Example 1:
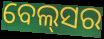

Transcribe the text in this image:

ବେଲ୍‌ସର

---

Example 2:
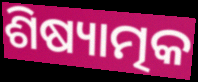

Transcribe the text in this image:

ଶିଷ୍ୟାତ୍ମକ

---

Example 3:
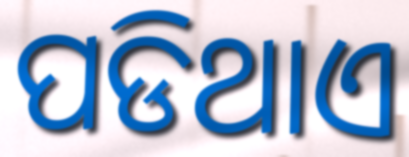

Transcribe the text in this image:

ପଡିଥାଏ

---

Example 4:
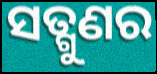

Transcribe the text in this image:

ସତ୍ଗୁଣର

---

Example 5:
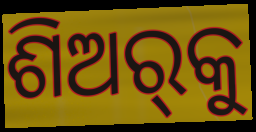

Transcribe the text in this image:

ଶିଅର୍‌କୁ